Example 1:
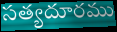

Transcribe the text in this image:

సత్యదూరము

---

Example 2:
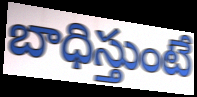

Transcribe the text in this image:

బాధిస్తుంటే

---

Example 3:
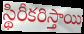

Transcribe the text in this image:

స్థిరీకరిస్తాయి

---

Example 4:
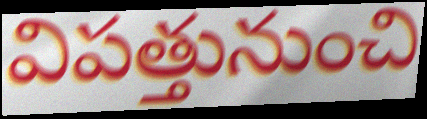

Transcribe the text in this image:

విపత్తునుంచి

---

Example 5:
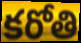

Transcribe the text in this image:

కరోతి